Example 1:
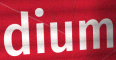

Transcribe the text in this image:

dium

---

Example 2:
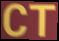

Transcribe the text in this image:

CT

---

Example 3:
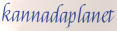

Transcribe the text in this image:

kannadaplanet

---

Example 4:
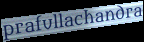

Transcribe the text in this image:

prafullachandra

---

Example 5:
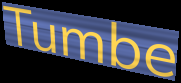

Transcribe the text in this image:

Tumbe